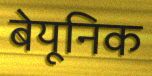
बेयूनिक